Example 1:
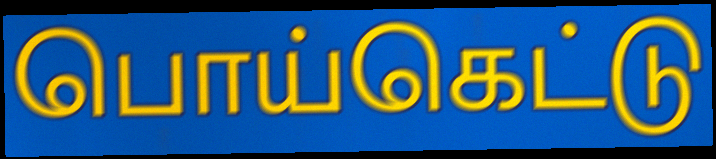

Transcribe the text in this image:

பொய்கெட்டு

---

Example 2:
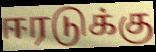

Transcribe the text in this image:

ஈரடுக்கு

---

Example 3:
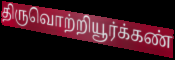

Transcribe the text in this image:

திருவொற்றியூர்க்கண்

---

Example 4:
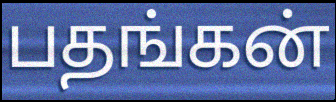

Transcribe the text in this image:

பதங்கன்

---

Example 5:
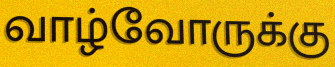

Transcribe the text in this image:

வாழ்வோருக்கு